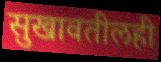
सुखावतीलही